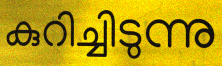
കുറിച്ചിടുന്നു